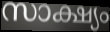
സാക്ഷ്യം